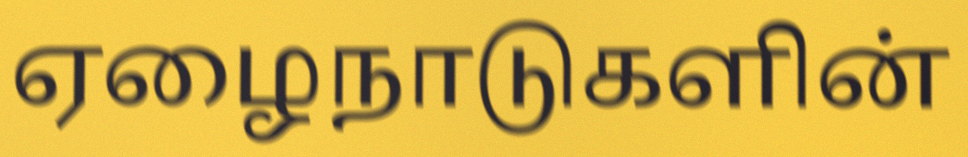
ஏழைநாடுகளின்